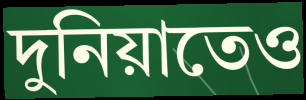
দুনিয়াতেও